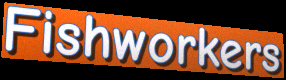
Fishworkers